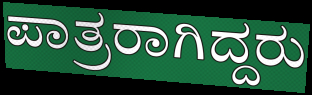
ಪಾತ್ರರಾಗಿದ್ದರು